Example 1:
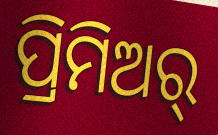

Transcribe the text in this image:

ପ୍ରିମିଅର୍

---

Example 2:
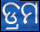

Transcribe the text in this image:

ଡ୍ରମ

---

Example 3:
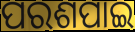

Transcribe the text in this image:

ପରଶପାଇ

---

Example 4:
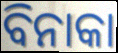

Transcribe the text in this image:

ବିନାକା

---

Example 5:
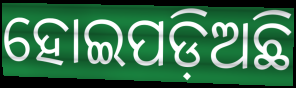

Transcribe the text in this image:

ହୋଇପଡ଼ିଅଛି